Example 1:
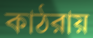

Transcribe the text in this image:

কাঠরায়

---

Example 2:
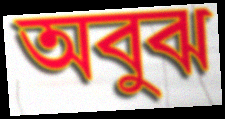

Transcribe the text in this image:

অবুঝ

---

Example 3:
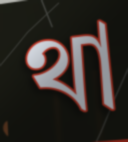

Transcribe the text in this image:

থা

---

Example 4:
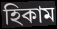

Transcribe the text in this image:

হিকাম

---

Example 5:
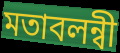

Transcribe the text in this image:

মতাবলন্বী